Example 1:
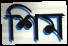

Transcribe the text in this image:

শিম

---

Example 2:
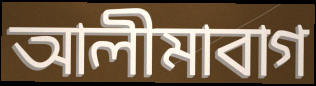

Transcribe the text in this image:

আলীমাবাগ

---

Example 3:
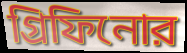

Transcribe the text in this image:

গ্রিফিনোর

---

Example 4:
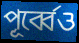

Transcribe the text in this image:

পূর্ব্বেও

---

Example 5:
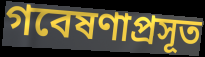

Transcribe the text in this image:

গবেষণাপ্রসূত